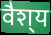
वैश्य